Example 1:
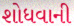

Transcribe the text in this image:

શોધવાની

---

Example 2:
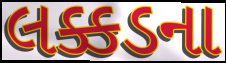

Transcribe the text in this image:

લક્કડના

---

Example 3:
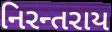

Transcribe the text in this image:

નિરન્તરાય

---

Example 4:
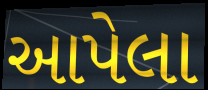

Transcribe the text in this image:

આપેલા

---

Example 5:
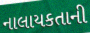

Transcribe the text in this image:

નાલાયકતાની